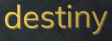
destiny